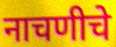
नाचणीचे